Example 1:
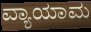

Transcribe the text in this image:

ವ್ಯಾಯಾಮ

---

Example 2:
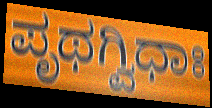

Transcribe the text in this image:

ಪೃಥಗ್ವಿಧಾಃ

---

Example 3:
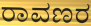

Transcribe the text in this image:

ರಾವಣರ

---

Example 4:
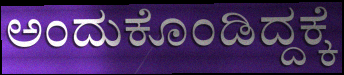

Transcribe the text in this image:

ಅಂದುಕೊಂಡಿದ್ದಕ್ಕೆ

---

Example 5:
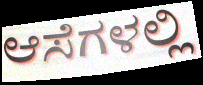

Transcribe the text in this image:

ಆಸೆಗಳಲ್ಲಿ